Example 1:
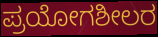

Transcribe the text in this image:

ಪ್ರಯೋಗಶೀಲರ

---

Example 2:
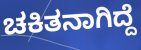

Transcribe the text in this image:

ಚಕಿತನಾಗಿದ್ದೆ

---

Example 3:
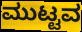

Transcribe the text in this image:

ಮುಟ್ಟವ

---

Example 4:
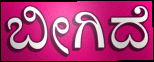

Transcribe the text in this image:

ಬೀಗಿದೆ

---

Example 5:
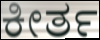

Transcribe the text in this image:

ಕೀರ್ತ